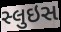
સ્લુઇસ